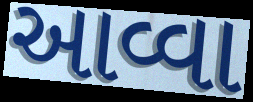
આવ્વા